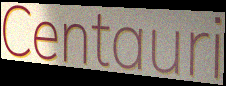
Centauri